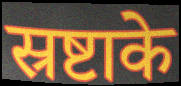
स्रष्टाके